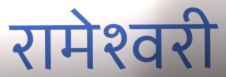
रामेश्वरी